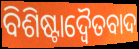
ବିଶିଷ୍ଟାଦ୍ୱୈତବାଦ